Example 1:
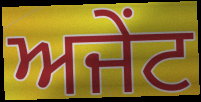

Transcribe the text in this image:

ਅਜੇਂਟ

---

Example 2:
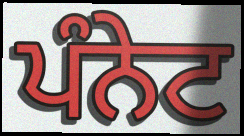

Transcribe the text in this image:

ਪੰਨੇਟ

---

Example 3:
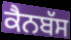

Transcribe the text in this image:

ਕੈਨਬੱਸ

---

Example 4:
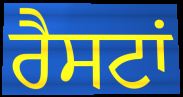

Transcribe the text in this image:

ਰੈਸਟਾਂ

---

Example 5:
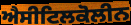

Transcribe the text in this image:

ਐਸੀਟਿਲਕੋਲੀਨ